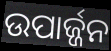
ଉପାର୍ଜ୍ଜନ